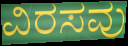
ವಿರಸವು